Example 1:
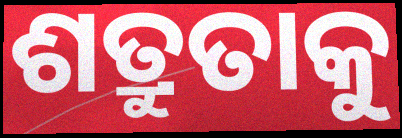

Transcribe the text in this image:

ଶତ୍ରୁତାକୁ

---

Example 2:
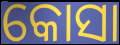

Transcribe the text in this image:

କୋସା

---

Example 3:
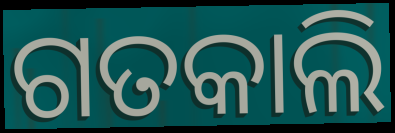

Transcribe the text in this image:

ଗତକାଲି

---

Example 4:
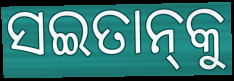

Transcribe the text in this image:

ସଇତାନ୍‌କୁ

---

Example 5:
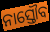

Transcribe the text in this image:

ନାସ୍ତୌବ